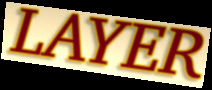
LAYER